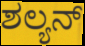
ಶಲ್ಯನ್